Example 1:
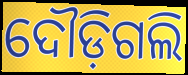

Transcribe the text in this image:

ଦୌଡ଼ିଗଲି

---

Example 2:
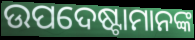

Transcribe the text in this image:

ଉପଦେଷ୍ଟାମାନଙ୍କ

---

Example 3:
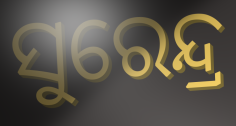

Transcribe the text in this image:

ସୁରେନ୍ଦ୍ର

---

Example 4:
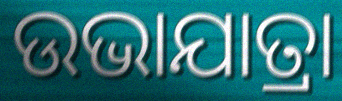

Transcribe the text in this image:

ଉଭାଯାତ୍ରା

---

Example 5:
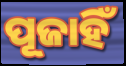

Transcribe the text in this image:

ପୂଜାହିଁ